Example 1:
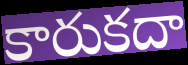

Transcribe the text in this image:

కారుకదా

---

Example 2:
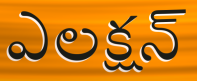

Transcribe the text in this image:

ఎలక్షన్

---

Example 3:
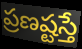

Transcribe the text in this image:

ప్రణష్టస్తే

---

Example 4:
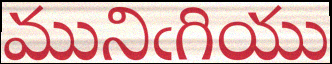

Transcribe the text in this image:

మునిఁగియు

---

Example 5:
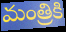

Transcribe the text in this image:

మంత్రికి